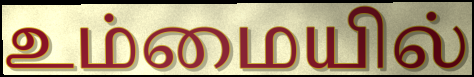
உம்மையில்